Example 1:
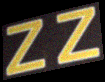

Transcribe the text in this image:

zz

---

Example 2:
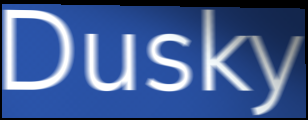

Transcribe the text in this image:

Dusky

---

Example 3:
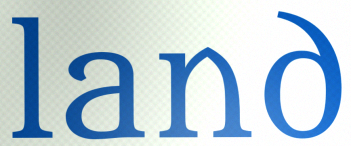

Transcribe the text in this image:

land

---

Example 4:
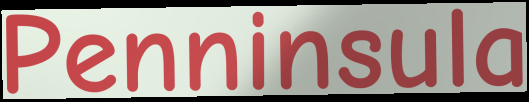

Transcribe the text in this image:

Penninsula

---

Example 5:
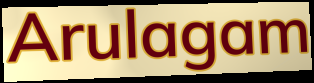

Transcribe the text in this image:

Arulagam